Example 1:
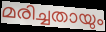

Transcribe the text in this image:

മരിച്ചതായും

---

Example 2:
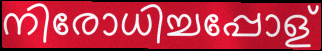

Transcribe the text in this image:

നിരോധിച്ചപ്പോള്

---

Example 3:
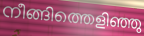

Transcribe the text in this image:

നീങ്ങിത്തെളിഞ്ഞു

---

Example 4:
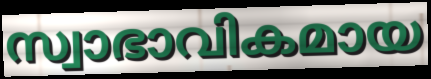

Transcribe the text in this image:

സ്വാഭാവികമായ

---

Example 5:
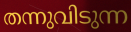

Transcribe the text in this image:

തന്നുവിടുന്ന